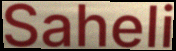
Saheli